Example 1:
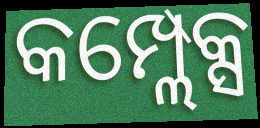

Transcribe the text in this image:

କମ୍ପ୍ଲେକ୍ସ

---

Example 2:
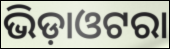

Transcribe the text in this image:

ଭିଡ଼ାଓଟରା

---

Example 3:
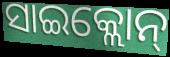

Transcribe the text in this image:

ସାଇକ୍ଲୋନ୍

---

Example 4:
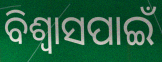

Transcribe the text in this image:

ବିଶ୍ୱାସପାଇଁ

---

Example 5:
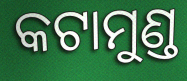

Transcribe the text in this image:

କଟାମୁଣ୍ଡ